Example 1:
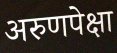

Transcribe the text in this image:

अरुणपेक्षा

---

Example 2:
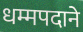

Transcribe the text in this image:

धम्मपदाने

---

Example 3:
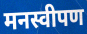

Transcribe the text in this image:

मनस्वीपण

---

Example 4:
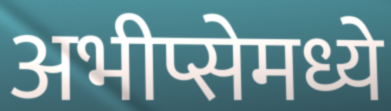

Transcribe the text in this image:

अभीप्सेमध्ये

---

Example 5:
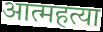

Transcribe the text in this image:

आत्महत्या